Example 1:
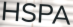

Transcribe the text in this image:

HSPA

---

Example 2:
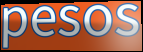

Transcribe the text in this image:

pesos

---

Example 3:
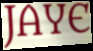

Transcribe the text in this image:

JAYE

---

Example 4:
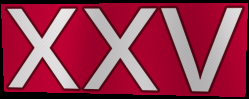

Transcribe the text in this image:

xxv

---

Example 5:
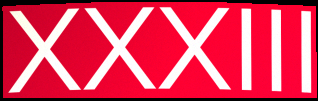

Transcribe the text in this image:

XXXIII